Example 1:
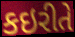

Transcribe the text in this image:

કઇરીતે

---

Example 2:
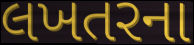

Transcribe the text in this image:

લખતરના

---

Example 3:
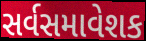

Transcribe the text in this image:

સર્વસમાવેશક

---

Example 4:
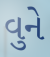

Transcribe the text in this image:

વુને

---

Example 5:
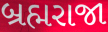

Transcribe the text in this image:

બ્રહ્મરાજા